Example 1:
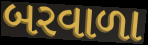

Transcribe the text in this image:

બરવાળા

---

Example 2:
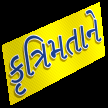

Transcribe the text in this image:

કૃત્રિમતાને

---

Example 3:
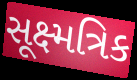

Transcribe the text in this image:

સૂક્ષ્મત્રિક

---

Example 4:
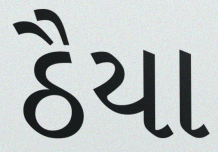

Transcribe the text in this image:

ઠૈયા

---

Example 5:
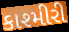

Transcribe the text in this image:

કાશ્મીરી